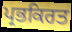
ਪ੍ਰਭਕਿਰਤ